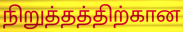
நிறுத்தத்திற்கான